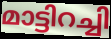
മാട്ടിറച്ചി